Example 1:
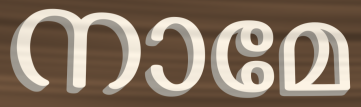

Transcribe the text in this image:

നാമേ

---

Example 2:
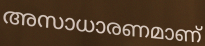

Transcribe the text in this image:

അസാധാരണമാണ്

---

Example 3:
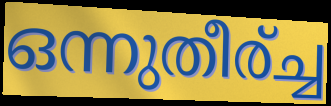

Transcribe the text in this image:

ഒന്നുതീര്ച്ച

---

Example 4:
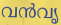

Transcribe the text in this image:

വൻവൃ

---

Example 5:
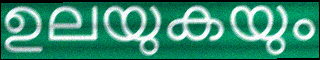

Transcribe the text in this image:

ഉലയുകയും